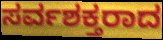
ಸರ್ವಶಕ್ತರಾದ